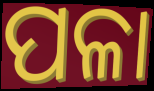
ପଳା